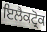
ਇਲੈਕਟ੍ਰੋਕ